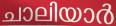
ചാലിയാർ